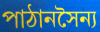
পাঠানসৈন্য